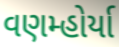
વણમ્હોર્યા